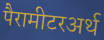
पैरामीटरअर्थ